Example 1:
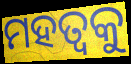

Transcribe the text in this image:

ମହତ୍ଵକୁ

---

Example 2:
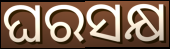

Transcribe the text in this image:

ଘରସକ୍ଷ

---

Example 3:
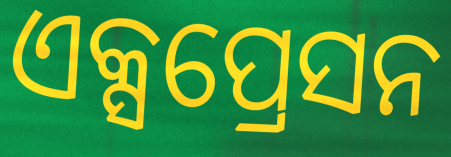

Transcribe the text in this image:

ଏକ୍ସପ୍ରେସନ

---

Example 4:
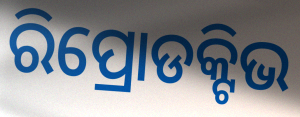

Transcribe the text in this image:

ରିପ୍ରୋଡକ୍ଟିଭ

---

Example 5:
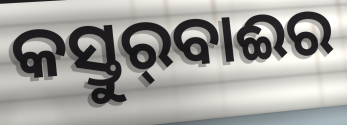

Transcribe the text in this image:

କସ୍ତୁର୍‍ବାଈର